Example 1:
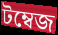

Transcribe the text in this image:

টম্বেজ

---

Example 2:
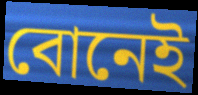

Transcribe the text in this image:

বোনেই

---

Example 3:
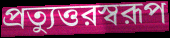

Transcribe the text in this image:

প্রত্যুত্তরস্বরূপ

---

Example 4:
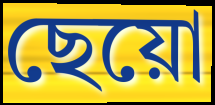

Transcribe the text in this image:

ছেয়ো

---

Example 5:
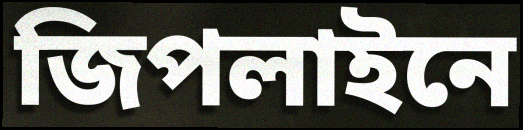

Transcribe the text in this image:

জিপলাইনে